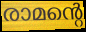
രാമന്റെ